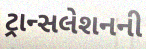
ટ્રાન્સલેશનની